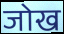
जोख